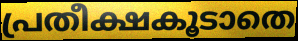
പ്രതീക്ഷകൂടാതെ